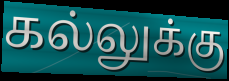
கல்லுக்கு